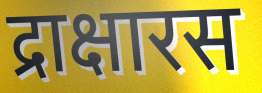
द्राक्षारस